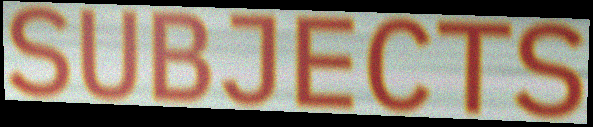
SUBJECTS